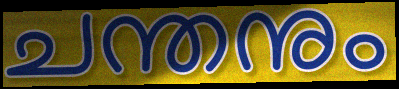
ചന്തനും